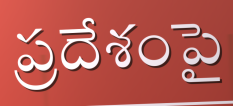
ప్రదేశంపై